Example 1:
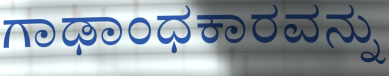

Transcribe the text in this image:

ಗಾಢಾಂಧಕಾರವನ್ನು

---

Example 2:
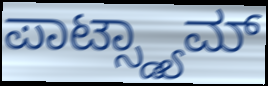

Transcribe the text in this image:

ಪಾಟ್ಸ್ಡ್ಯಾಮ್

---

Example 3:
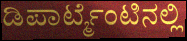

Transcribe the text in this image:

ಡಿಪಾರ್ಟ್ಮೆಂಟಿನಲ್ಲಿ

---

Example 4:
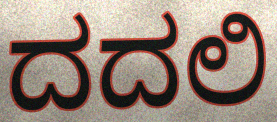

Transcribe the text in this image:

ದದಲಿ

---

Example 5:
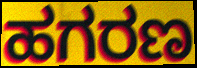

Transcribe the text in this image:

ಹಗರಣ